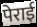
पेराई